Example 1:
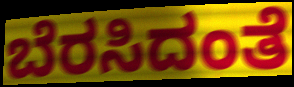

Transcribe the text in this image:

ಬೆರಸಿದಂತೆ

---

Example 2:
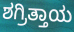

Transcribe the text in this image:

ಶಗ್ರಿತ್ತಾಯ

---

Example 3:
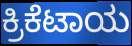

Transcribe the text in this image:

ಕ್ರಿಕೆಟಾಯ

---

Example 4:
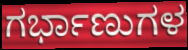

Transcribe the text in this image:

ಗರ್ಭಾಣುಗಳ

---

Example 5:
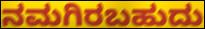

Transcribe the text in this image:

ನಮಗಿರಬಹುದು